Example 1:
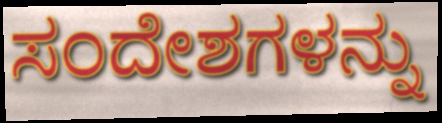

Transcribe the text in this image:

ಸಂದೇಶಗಳನ್ನು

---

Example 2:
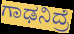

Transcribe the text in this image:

ಗಾಢನಿದ್ರೆ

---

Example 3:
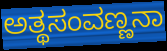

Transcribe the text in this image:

ಅತ್ಥಸಂವಣ್ಣನಾ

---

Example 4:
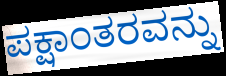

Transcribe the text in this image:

ಪಕ್ಷಾಂತರವನ್ನು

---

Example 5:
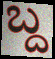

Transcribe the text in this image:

ಬ್ದ